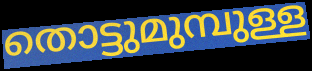
തൊട്ടുമുമ്പുള്ള